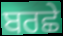
ਬਰਛੇ